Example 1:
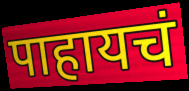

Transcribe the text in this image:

पाहायचं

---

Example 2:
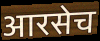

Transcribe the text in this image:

आरसेच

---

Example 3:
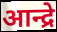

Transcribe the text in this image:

आन्द्रे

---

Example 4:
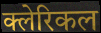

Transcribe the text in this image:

क्लेरिकल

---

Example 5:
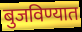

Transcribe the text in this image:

बुजविण्यात